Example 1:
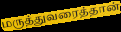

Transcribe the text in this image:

மருத்துவரைத்தான்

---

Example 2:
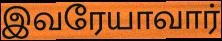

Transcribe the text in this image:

இவரேயாவார்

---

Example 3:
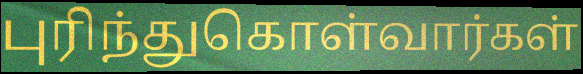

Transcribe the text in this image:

புரிந்துகொள்வார்கள்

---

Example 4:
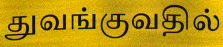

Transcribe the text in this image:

துவங்குவதில்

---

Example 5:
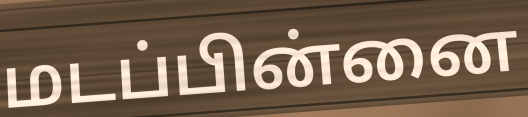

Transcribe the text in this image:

மடப்பின்னை